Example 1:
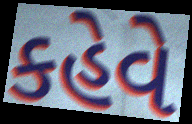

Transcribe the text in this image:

કહેવે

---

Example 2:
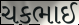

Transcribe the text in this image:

ચકભાઈ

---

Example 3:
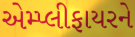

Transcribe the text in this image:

એમ્પ્લીફાયરને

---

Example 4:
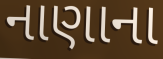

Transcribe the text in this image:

નાણાના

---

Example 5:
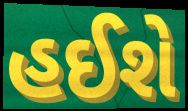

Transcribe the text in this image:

હઈશે